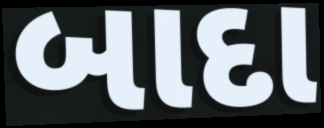
બાદા